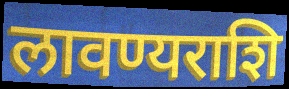
लावण्यराशि